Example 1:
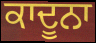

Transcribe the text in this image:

ਕਾਦੂਨਾ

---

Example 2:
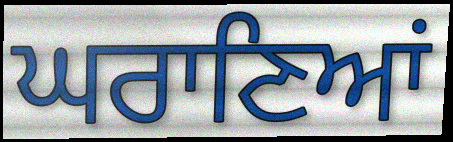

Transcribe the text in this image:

ਘਰਾਣਿਆਂ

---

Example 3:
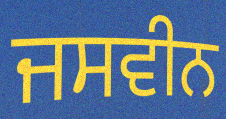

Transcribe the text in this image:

ਜਸਵੀਨ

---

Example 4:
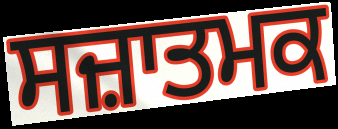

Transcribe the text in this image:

ਸਜ਼ਾਤਮਕ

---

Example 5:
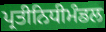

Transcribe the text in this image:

ਪ੍ਰਤੀਨਿਧੀਮੰਡਲ